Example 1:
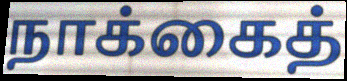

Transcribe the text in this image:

நாக்கைத்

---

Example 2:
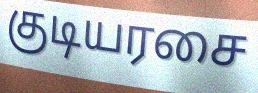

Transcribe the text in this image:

குடியரசை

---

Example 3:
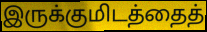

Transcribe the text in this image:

இருக்குமிடத்தைத்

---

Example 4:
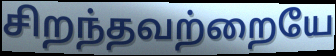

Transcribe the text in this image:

சிறந்தவற்றையே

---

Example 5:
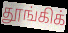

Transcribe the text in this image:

தூங்கிக்